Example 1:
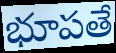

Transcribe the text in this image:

భూపతే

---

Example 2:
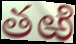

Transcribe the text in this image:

తఱి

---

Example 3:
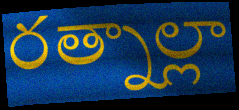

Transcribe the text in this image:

రత్నాల్లా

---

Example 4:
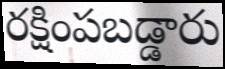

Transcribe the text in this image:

రక్షింపబడ్డారు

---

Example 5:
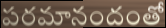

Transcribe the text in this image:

పరమానందంతో